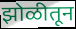
झोळीतून